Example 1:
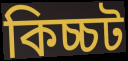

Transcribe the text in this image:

কিচ্চট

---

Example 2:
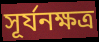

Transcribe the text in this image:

সূর্যনক্ষত্র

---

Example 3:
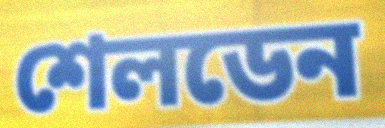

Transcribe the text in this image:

শেলডেন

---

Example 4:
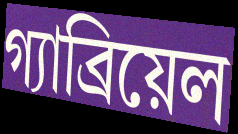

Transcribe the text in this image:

গ্যাব্রিয়েল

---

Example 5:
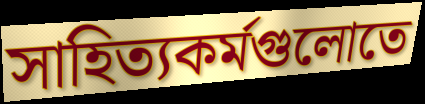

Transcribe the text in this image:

সাহিত্যকর্মগুলোতে